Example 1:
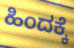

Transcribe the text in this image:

ಹಿಂದಕ್ಕೆ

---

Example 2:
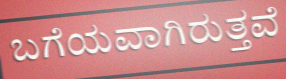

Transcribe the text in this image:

ಬಗೆಯವಾಗಿರುತ್ತವೆ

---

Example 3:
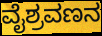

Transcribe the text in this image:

ವೈಶ್ರವಣನ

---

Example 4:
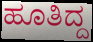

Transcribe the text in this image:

ಹೂತಿದ್ದ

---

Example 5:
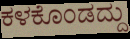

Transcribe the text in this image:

ಕಳಕೊಂಡದ್ದು